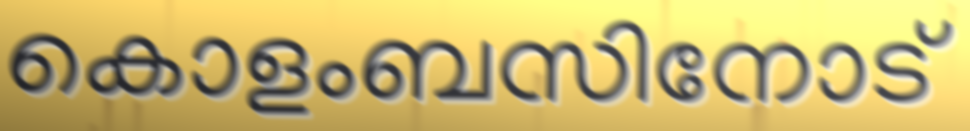
കൊളംബസിനോട്